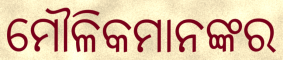
ମୌଳିକମାନଙ୍କର